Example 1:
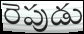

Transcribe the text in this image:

రెపుడు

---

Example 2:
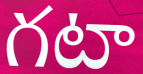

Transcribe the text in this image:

గటా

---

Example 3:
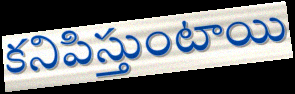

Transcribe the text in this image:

కనిపిస్తుంటాయి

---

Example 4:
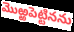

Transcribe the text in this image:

మొఱ్ఱపెట్టినను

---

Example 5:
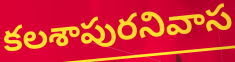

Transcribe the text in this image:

కలశాపురనివాస